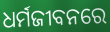
ଧର୍ମଜୀବନରେ